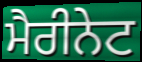
ਮੈਰੀਨੇਟ